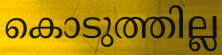
കൊടുത്തില്ല